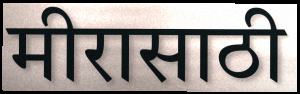
मीरासाठी